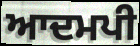
ਆਦਮਪੀ